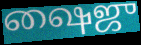
ஷைஜு